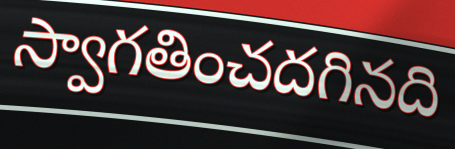
స్వాగతించదగినది